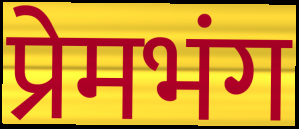
प्रेमभंग